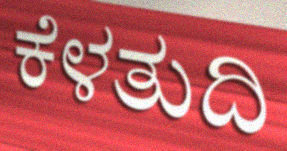
ಕೆಳತುದಿ